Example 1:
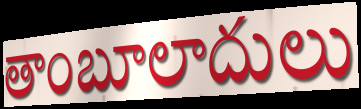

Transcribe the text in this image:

తాంబూలాదులు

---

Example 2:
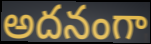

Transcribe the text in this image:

అదనంగా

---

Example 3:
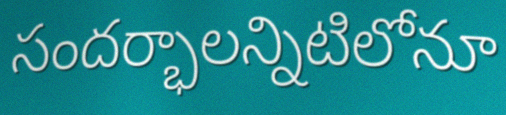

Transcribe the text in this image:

సందర్భాలన్నిటిలోనూ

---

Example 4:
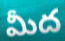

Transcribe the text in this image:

మీద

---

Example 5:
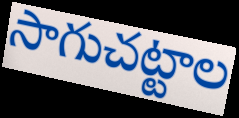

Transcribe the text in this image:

సాగుచట్టాల